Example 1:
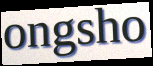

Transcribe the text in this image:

ongsho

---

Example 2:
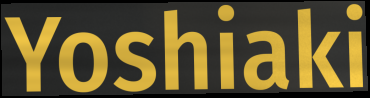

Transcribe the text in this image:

Yoshiaki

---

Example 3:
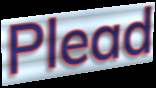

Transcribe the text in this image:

Plead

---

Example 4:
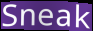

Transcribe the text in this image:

Sneak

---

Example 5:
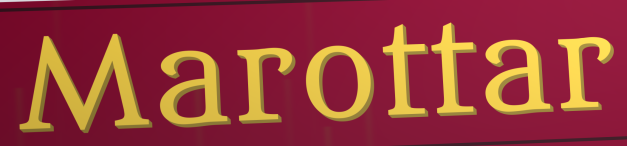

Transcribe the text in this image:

Marottar